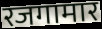
रजगामार